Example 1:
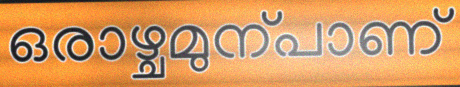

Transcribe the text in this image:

ഒരാഴ്ചമുന്പാണ്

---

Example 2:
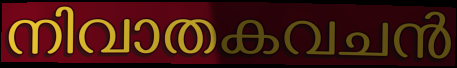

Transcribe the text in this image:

നിവാതകവചൻ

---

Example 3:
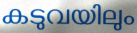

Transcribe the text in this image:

കടുവയിലും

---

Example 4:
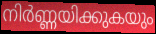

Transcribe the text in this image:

നിർണ്ണയിക്കുകയും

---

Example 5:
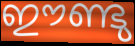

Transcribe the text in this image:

ഈണ്ടു